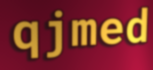
qjmed